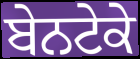
ਬੇਨਟੇਕੇ